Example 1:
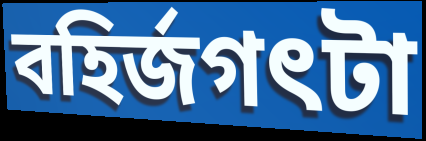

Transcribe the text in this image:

বহির্জগৎটা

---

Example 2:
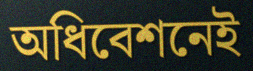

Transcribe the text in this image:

অধিবেশনেই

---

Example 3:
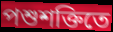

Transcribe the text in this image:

পশুশক্তিতে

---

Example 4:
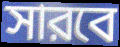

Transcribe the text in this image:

সারবে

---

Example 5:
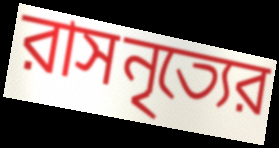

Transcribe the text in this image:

রাসনৃত্যের